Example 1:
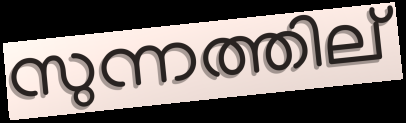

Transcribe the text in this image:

സുന്നത്തില്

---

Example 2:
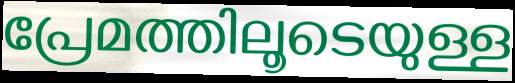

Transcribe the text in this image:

പ്രേമത്തിലൂടെയുള്ള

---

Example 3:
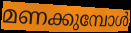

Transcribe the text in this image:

മണക്കുമ്പോൾ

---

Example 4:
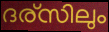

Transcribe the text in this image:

ദര്സിലും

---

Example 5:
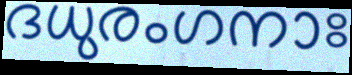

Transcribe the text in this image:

ദധുരംഗനാഃ